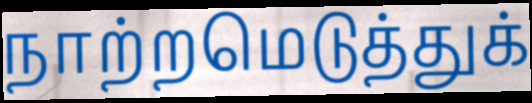
நாற்றமெடுத்துக்